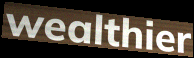
wealthier